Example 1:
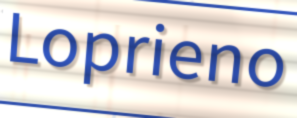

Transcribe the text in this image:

Loprieno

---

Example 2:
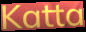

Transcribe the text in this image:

Katta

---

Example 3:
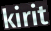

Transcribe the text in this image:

kirit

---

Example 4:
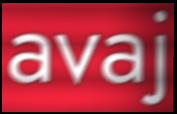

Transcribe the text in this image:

avaj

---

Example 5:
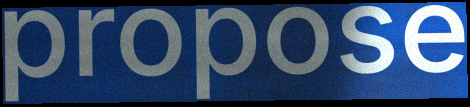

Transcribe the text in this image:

propose